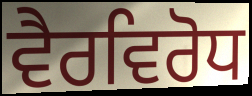
ਵੈਰਵਿਰੋਧ